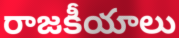
రాజకీయాలు